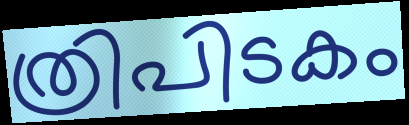
ത്രിപിടകം